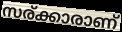
സര്ക്കാരാണ്